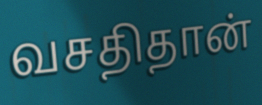
வசதிதான்